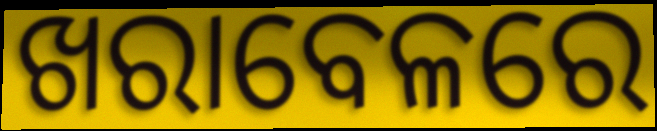
ଖରାବେଳରେ